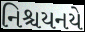
નિશ્ચયનયે